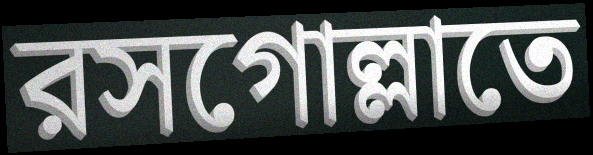
রসগোল্লাতে